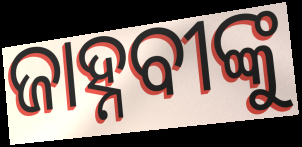
ଜାହ୍ନବୀଙ୍କୁ